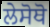
ਲੇਸੋਥੋ